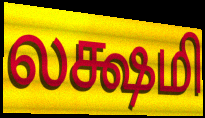
லக்ஷமி